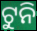
ଟୁନି